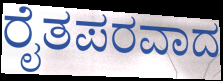
ರೈತಪರವಾದ